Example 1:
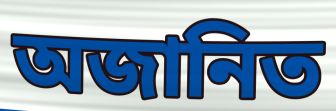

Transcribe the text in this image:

অজানিত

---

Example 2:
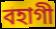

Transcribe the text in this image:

বহাগী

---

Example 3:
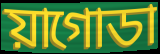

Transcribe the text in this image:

য়াগোডা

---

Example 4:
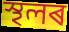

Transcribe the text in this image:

স্থলৰ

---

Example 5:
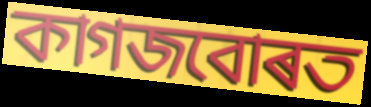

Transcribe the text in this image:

কাগজবোৰত